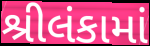
શ્રીલંકામાં